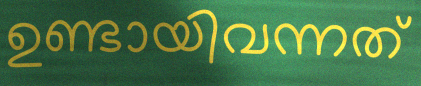
ഉണ്ടായിവന്നത്